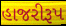
હાજરીરૂપ